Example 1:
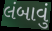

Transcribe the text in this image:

લંબાવું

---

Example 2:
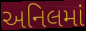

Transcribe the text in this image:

અનિલમાં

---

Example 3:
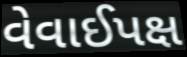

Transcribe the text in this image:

વેવાઈપક્ષ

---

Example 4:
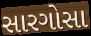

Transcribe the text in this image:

સારગોસા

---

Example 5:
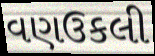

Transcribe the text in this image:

વણઉકલી